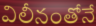
విలీనంతోనే